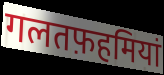
गलतफ़हमियां